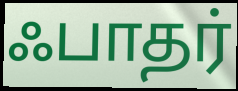
ஃபாதர்